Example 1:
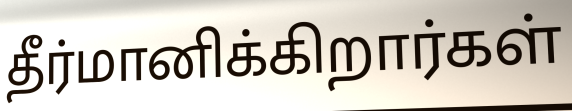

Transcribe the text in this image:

தீர்மானிக்கிறார்கள்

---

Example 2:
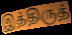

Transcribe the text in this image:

இத்திருத்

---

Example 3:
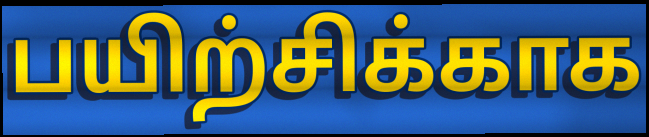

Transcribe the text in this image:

பயிற்சிக்காக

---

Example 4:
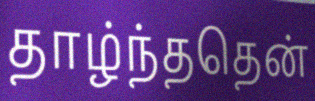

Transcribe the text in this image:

தாழ்ந்ததென்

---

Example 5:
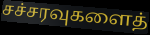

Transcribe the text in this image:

சச்சரவுகளைத்